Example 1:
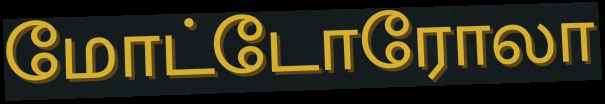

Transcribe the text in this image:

மோட்டோரோலா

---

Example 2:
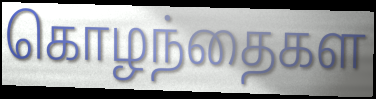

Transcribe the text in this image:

கொழந்தைகள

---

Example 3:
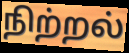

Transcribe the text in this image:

நிற்றல்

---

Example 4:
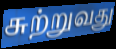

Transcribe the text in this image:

சுற்றுவது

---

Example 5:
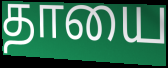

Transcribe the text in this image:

தாயை